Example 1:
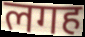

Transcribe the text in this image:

लगह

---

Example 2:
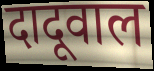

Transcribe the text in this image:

दादूवाल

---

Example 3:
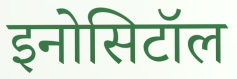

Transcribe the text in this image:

इनोसिटॉल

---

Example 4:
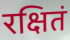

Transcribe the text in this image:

रक्षितं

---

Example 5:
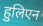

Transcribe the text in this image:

हुलिएन